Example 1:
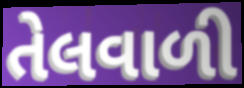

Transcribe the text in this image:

તેલવાળી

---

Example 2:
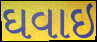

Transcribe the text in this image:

ઘવાઇ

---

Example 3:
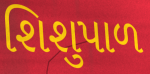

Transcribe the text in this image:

શિશુપાળ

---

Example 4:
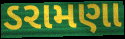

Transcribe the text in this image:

ડરામણા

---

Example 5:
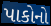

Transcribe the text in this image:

પાકોનો